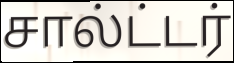
சால்ட்டர்